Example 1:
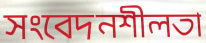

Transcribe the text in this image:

সংবেদনশীলতা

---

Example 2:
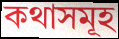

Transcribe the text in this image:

কথাসমূহ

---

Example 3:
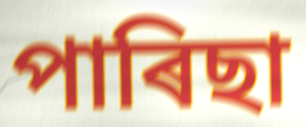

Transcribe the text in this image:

পাৰিছা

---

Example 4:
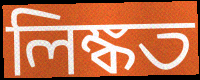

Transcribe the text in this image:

লিঙ্কত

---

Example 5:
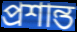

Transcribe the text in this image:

প্ৰশান্ত